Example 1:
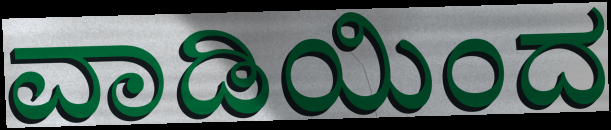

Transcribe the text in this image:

ವಾಡಿಯಿಂದ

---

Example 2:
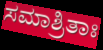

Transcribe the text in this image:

ಸಮಾಶ್ರಿತಾಃ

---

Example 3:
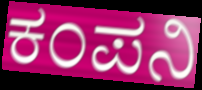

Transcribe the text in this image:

ಕಂಪನಿ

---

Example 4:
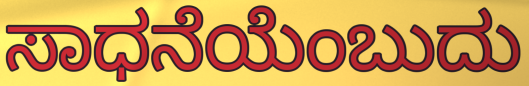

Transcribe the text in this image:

ಸಾಧನೆಯೆಂಬುದು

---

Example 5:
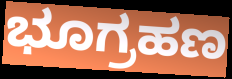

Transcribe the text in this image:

ಭೂಗ್ರಹಣ